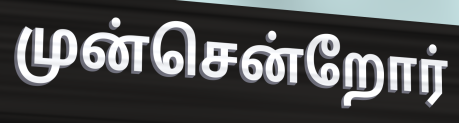
முன்சென்றோர்